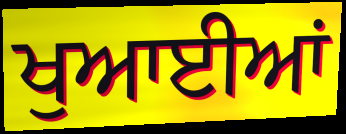
ਖੁਆਈਆਂ